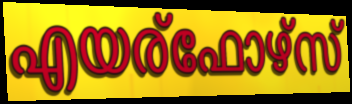
എയര്ഫോഴ്സ്